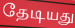
தேடியது